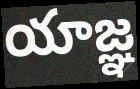
యాజ్ఞ